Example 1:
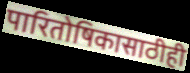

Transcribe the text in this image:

पारितोषिकासाठीही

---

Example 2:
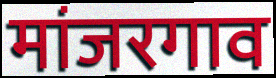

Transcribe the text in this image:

मांजरगाव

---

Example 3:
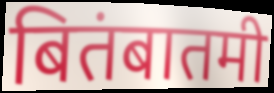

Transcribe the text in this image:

बितंबातमी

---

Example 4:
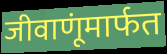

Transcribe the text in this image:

जीवाणूंमार्फत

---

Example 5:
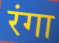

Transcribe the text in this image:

रंगा